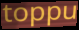
toppu